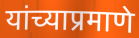
यांच्याप्रमाणे